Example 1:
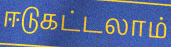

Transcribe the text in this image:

ஈடுகட்டலாம்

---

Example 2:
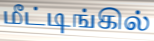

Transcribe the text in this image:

மீட்டிங்கில்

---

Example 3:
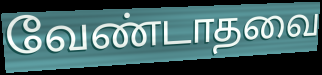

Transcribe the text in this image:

வேண்டாதவை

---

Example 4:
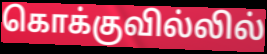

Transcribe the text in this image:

கொக்குவில்லில்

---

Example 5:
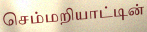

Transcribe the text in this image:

செம்மறியாட்டின்